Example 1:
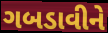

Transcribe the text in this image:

ગબડાવીને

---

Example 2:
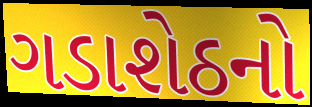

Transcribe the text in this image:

ગડાશેઠનો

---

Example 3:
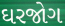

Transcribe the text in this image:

ઘરજોગ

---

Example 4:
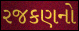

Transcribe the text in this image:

રજકણનો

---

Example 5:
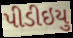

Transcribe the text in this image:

પીડીઇયુ